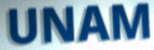
UNAM